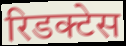
रिडक्टेस